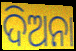
ଦିଅନା